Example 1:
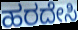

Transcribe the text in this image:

ಹರದೇಸಿ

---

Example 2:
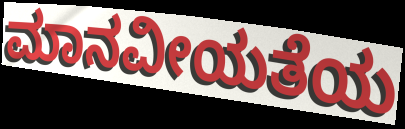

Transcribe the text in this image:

ಮಾನವೀಯತೆಯ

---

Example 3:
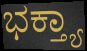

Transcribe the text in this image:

ಭಕ್ತ್ಯಾ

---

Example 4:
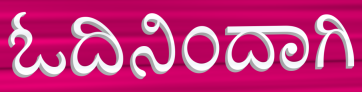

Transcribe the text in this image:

ಓದಿನಿಂದಾಗಿ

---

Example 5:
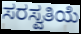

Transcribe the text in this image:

ಸರಸ್ವತಿಯೆ